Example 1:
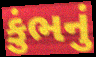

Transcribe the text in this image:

કુંભનું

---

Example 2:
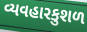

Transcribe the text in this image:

વ્યવહારકુશળ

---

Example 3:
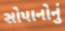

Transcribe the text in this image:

સોપાનોનું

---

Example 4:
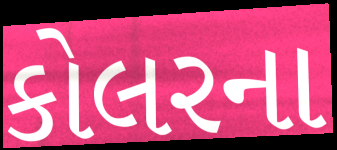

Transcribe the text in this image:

કોલરના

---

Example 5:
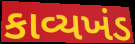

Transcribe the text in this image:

કાવ્યખંડ